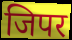
जिपर